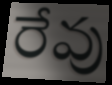
రేవు